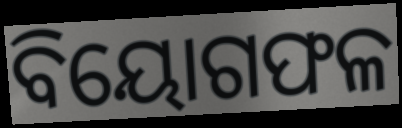
ବିୟୋଗଫଳ